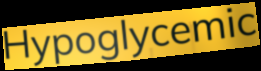
Hypoglycemic